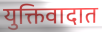
युक्तिवादात